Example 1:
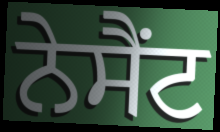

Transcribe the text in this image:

ਨੇਸੈਂਟ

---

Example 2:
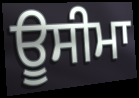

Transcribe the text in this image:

ਊਸੀਮਾ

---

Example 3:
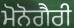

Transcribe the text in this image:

ਮੋਨੋਗੈਰੀ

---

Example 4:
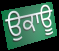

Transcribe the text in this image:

ਉਕਾਊ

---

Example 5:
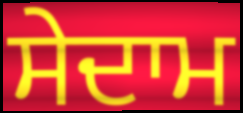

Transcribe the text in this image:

ਸੇਦਾਮ